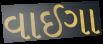
વાઈગા